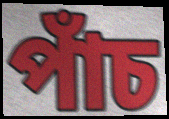
পাঁচ